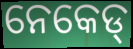
ନେକେଡ୍